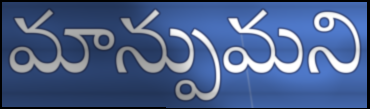
మాన్పుమని